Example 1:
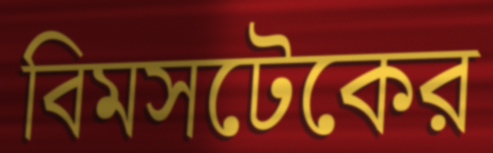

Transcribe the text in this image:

বিমসটেকের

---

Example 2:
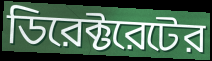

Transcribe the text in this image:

ডিরেক্টরেটের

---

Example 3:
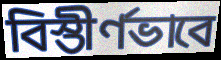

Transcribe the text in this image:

বিস্তীর্ণভাবে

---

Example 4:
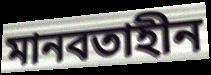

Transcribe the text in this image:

মানবতাহীন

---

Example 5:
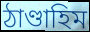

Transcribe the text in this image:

ঠাণ্ডাহিম